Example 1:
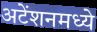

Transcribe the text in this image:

अटेंशनमध्ये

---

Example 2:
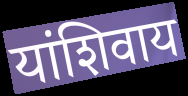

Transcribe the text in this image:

यांशिवाय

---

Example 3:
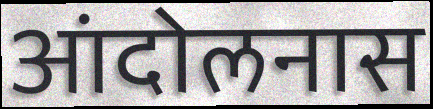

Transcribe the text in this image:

आंदोलनास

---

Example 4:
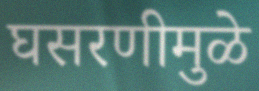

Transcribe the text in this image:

घसरणीमुळे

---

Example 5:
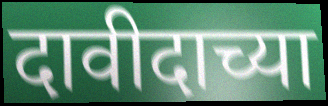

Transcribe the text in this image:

दावीदाच्या